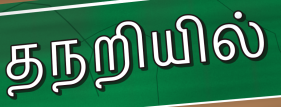
தநறியில்